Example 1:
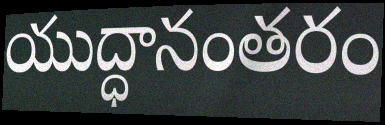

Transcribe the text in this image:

యుద్ధానంతరం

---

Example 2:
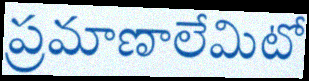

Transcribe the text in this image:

ప్రమాణాలేమిటో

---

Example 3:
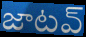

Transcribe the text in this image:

జాటవ్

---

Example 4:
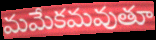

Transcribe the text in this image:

మమేకమవుతూ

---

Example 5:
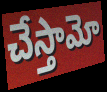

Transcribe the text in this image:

చేస్తామో